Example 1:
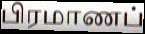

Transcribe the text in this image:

பிரமாணப்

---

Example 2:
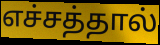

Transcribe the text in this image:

எச்சத்தால்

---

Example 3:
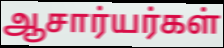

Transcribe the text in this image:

ஆசார்யர்கள்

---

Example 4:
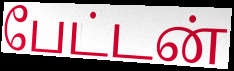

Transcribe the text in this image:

பேட்டன்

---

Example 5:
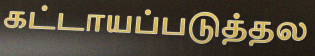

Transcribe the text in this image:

கட்டாயப்படுத்தல